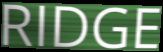
RIDGE